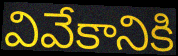
వివేకానికి